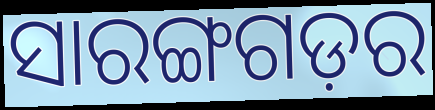
ସାରଙ୍ଗଗଡ଼ର